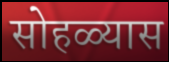
सोहळ्यास